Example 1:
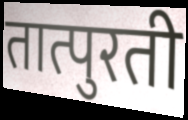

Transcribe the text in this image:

तात्पुरती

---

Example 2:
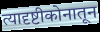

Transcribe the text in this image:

त्यादृष्टीकोनातून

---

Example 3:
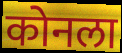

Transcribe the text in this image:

कोनला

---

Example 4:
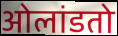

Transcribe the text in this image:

ओलांडतो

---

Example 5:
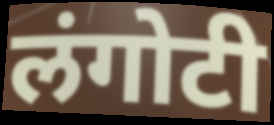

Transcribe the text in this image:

लंगोटी